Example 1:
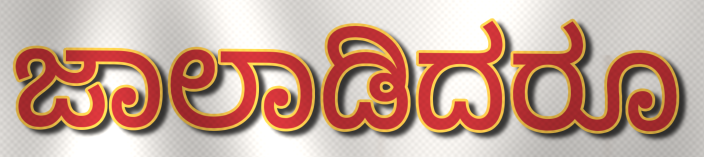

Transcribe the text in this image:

ಜಾಲಾಡಿದರೂ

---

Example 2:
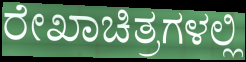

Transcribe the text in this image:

ರೇಖಾಚಿತ್ರಗಳಲ್ಲಿ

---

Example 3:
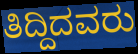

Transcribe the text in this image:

ತಿದ್ದಿದವರು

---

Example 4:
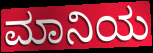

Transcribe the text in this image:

ಮಾನಿಯ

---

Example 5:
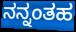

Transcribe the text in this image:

ನನ್ನಂತಹ